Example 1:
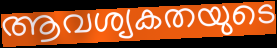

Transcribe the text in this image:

ആവശ്യകതയുടെ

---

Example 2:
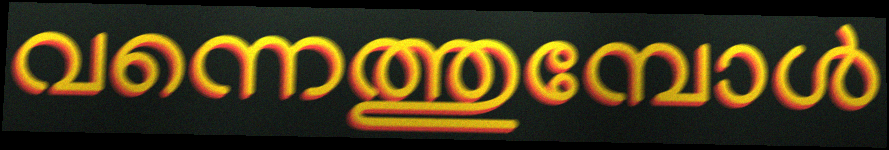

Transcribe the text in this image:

വന്നെത്തുമ്പോൾ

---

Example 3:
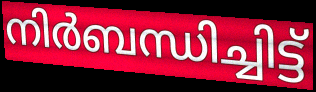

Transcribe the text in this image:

നിർബന്ധിച്ചിട്ട്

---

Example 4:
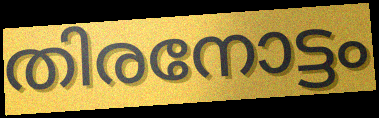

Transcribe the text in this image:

തിരനോട്ടം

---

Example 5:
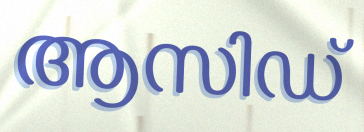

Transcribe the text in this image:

ആസിഡ്